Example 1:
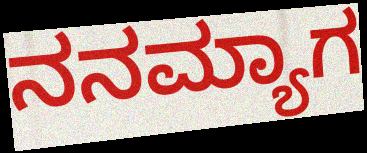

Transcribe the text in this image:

ನನಮ್ಯಾಗ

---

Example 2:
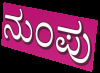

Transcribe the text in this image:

ನುಂಪು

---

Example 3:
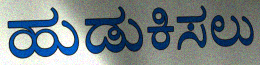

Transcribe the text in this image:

ಹುಡುಕಿಸಲು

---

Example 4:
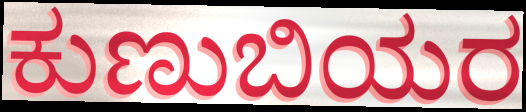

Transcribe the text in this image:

ಕುಣುಬಿಯರ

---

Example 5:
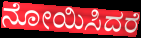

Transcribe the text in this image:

ನೋಯಿಸಿದರೆ